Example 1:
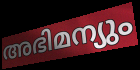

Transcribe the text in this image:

അഭിമന്യും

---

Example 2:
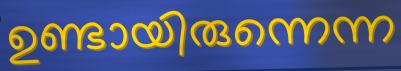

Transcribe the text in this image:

ഉണ്ടായിരുന്നെന്ന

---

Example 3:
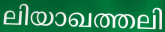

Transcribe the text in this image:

ലിയാഖത്തലി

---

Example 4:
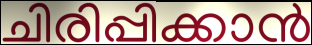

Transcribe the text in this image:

ചിരിപ്പിക്കാൻ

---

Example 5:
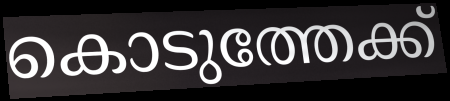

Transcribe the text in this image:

കൊടുത്തേക്ക്